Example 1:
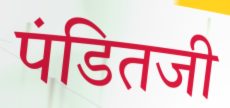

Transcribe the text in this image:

पंडितजी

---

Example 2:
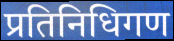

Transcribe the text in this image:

प्रतिनिधिगण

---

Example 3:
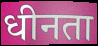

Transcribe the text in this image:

धीनता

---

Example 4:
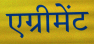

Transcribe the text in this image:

एग्रीमेंट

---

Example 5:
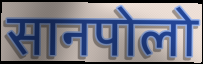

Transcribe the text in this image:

सानपोलो